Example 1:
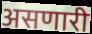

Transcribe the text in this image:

असणारी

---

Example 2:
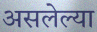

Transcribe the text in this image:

असलेल्या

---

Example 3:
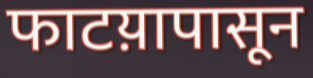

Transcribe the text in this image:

फाटय़ापासून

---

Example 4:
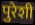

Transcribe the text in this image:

पुरेशी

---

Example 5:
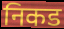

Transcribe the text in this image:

निकड